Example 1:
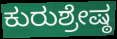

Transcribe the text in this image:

ಕುರುಶ್ರೇಷ್ಠ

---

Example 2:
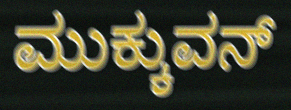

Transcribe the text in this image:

ಮುಕ್ಕುವನ್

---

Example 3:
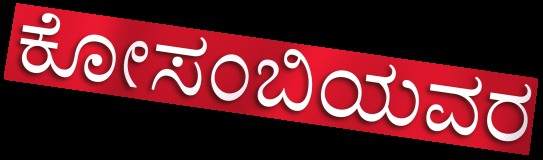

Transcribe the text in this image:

ಕೋಸಂಬಿಯವರ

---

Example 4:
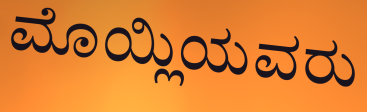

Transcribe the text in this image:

ಮೊಯ್ಲಿಯವರು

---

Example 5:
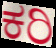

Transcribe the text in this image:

ಕರಿ